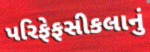
પરિફેફસીકલાનું